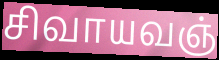
சிவாயவஞ்